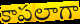
కాపలాగా